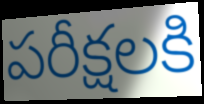
పరీక్షలకి